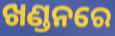
ଖଣ୍ଡନରେ